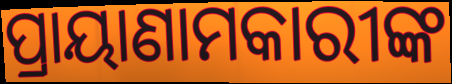
ପ୍ରାୟାଣାମକାରୀଙ୍କ